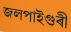
জলপাইগুৰী